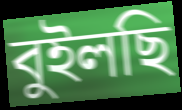
বুইলছি